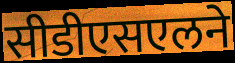
सीडीएसएलने